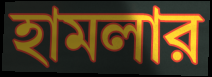
হামলার